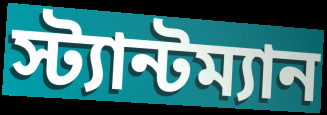
স্ট্যান্টম্যান